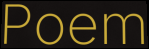
Poem